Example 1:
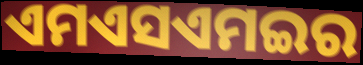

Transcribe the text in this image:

ଏମଏସଏମଇର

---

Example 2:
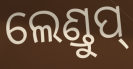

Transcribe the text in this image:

ଲେଣ୍ଡୁପ୍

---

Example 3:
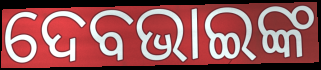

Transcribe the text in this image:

ଦେବଭାଇଙ୍କ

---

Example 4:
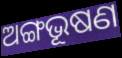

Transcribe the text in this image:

ଅଙ୍ଗଭୂଷଣ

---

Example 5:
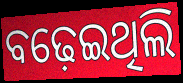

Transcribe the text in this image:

ବଢ଼େଇଥିଲି